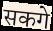
सकगे